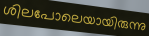
ശിലപോലെയായിരുന്നു